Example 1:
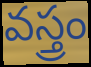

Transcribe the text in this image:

వస్త్రం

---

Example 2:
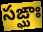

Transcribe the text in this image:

సఙ్ఘాః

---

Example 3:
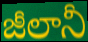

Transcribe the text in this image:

జీలానీ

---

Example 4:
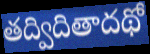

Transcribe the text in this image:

తద్విదితాదథో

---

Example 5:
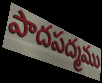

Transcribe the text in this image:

పాదపద్మము